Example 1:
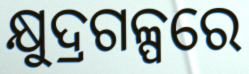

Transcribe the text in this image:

କ୍ଷୁଦ୍ରଗଳ୍ପରେ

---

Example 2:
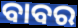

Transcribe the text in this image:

ବାବର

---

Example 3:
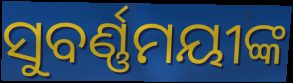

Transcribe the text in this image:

ସୁବର୍ଣ୍ଣମୟୀଙ୍କ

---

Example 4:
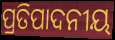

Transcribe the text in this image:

ପ୍ରତିପାଦନୀୟ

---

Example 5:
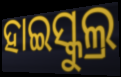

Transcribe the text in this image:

ହାଇସ୍କୁଲ୍ର